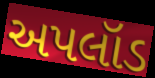
અપલૉડ